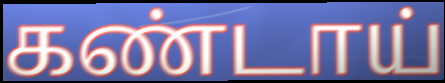
கண்டாய்